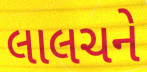
લાલચને